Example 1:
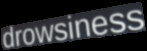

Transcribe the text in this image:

drowsiness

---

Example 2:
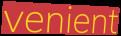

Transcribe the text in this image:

venient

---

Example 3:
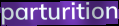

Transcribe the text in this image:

parturition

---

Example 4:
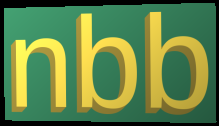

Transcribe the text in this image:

nbb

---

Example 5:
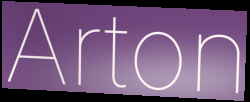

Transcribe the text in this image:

Arton